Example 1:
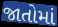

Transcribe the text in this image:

જાતોમાં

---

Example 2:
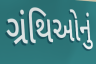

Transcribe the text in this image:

ગ્રંથિઓનું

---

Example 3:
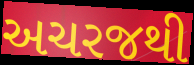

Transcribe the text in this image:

અચરજથી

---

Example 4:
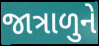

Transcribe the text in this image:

જાત્રાળુને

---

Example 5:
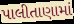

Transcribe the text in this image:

પાલીતાણામાં